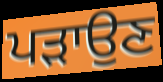
ਪੜਾਉਣ